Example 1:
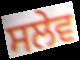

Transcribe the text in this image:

ਸਲੇਵ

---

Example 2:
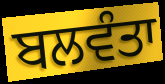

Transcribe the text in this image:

ਬਲਵੰਤਾ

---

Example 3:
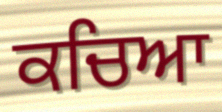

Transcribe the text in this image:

ਕਚਿਆ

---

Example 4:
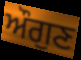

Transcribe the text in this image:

ਔਗੁਣ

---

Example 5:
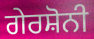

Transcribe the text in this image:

ਗੇਰਸ਼ੋਨੀ